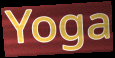
Yoga